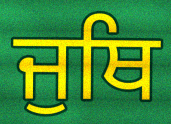
ਜੁਥਿ